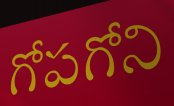
గోపగోని